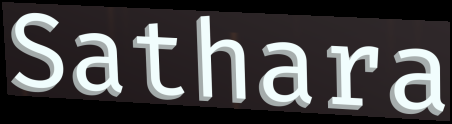
Sathara